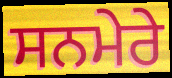
ਸਨਮੇਰੇ